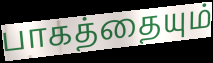
பாகத்தையும்